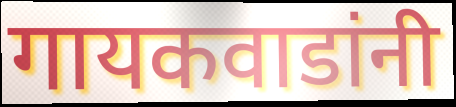
गायकवाडांनी